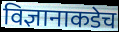
विज्ञानाकडेच